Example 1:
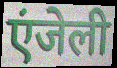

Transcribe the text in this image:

एंजेली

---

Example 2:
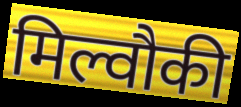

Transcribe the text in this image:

मिल्वौकी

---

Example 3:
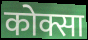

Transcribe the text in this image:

कोक्सा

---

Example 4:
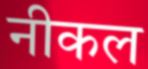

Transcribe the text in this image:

नीकल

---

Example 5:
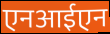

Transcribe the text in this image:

एनआईएन